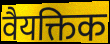
वैयक्तिक